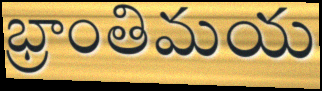
భ్రాంతిమయ